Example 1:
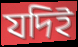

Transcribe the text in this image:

যদিই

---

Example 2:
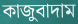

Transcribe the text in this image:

কাজুবাদাম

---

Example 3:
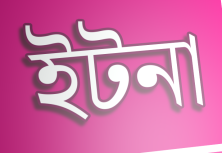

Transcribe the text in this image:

ইটনা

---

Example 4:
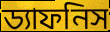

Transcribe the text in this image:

ড্যাফনিস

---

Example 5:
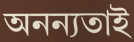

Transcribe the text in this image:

অনন্যতাই